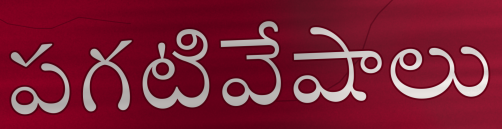
పగటివేషాలు